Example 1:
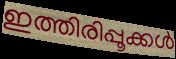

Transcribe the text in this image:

ഇത്തിരിപ്പൂക്കൾ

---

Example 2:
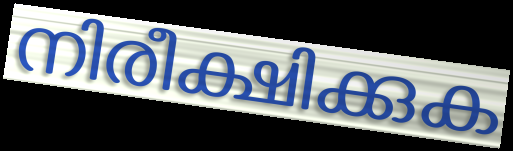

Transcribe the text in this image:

നിരീക്ഷിക്കുക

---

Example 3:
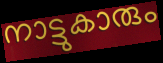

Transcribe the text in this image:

നാട്ടുകാരും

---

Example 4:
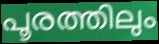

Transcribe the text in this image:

പൂരത്തിലും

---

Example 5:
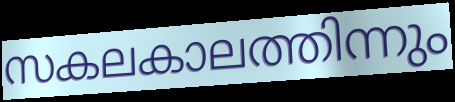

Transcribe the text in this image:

സകലകാലത്തിന്നും